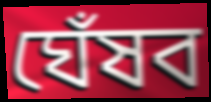
ঘেঁষব